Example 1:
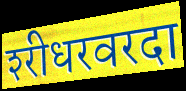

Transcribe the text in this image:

श्रीधरवरदा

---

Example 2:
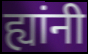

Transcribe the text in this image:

ह्यांनी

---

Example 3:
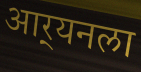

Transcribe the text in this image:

आर्यनला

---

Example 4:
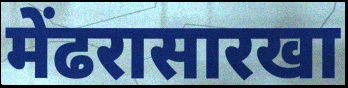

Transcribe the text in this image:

मेंढरासारखा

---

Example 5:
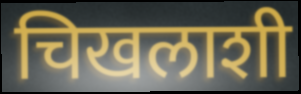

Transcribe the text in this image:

चिखलाशी